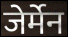
जेर्मेन